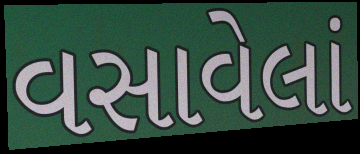
વસાવેલાં